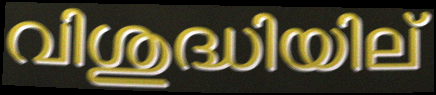
വിശുദ്ധിയില്